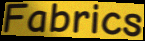
Fabrics